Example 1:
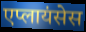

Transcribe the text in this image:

एप्लायंसेस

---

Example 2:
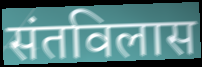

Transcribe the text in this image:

संतविलास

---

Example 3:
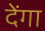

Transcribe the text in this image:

देंगा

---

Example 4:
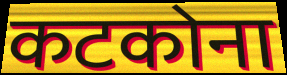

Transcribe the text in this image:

कटकोना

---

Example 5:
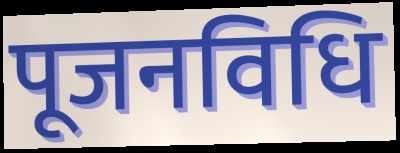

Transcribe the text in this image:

पूजनविधि